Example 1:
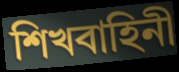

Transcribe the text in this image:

শিখবাহিনী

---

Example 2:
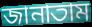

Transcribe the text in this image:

জানাতাম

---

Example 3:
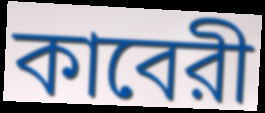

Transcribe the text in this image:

কাবেরী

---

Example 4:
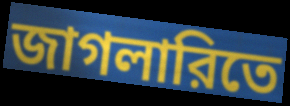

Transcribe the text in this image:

জাগলারিতে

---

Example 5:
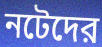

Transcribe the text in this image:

নটেদের